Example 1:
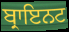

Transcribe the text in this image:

ਬ੍ਰਾਇਨਟ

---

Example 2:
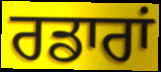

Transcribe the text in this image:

ਰਡਾਰਾਂ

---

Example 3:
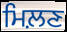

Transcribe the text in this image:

ਮਿਲ਼ਣ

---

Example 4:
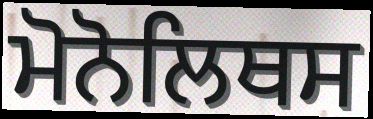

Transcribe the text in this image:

ਮੋਨੋਲਿਥਸ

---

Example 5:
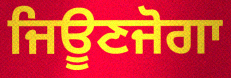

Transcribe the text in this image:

ਜਿਊਣਜੋਗਾ